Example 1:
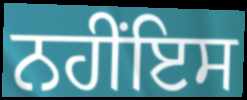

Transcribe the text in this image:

ਨਹੀਂਇਸ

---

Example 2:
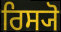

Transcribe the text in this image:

ਰਿਸ੍ਯੋ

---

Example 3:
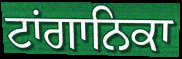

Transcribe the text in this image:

ਟਾਂਗਾਨਿਕਾ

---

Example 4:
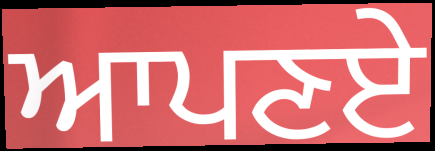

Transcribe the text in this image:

ਆਪਣਏ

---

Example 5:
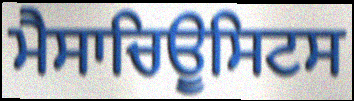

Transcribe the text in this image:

ਮੈਸਾਚਿਊਸਿਟਸ